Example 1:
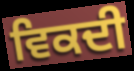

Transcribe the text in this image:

ਵਿਕਦੀ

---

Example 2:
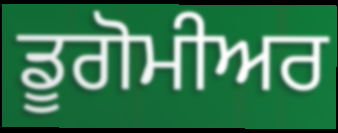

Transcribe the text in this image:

ਡੂਗੋਮੀਅਰ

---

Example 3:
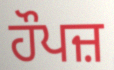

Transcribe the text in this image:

ਹੌਪਜ਼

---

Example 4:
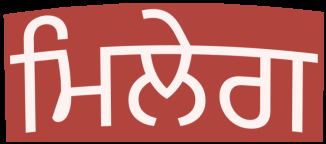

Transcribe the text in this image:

ਮਿਲੇਗ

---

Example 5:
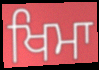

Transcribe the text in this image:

ਖਿਮਾ